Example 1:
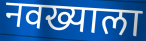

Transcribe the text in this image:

नवख्याला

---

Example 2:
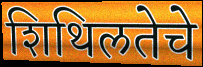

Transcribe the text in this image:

शिथिलतेचे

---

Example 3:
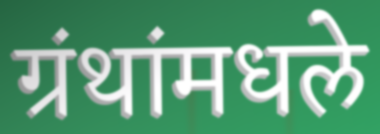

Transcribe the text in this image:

ग्रंथांमधले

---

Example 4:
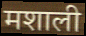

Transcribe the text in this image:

मशाली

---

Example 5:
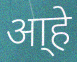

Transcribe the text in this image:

आ्हे